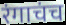
रंगाचंच